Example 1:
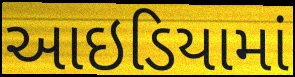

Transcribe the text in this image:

આઇડિયામાં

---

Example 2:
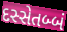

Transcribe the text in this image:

દસ્સેતબ્બં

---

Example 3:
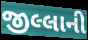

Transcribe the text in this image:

જીલ્લાની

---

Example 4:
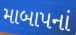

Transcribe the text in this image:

માબાપનાં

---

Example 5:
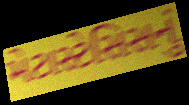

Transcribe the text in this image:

મેટાસ્ટેસિસનું